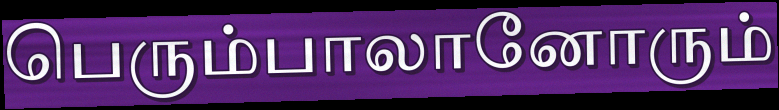
பெரும்பாலானோரும்